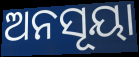
ଅନସୂୟା